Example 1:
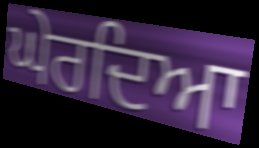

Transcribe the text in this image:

ਘੇਰਦਿਆ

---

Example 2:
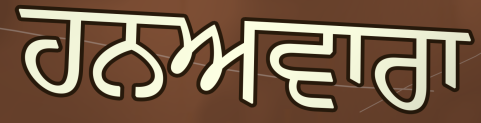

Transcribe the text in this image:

ਹਨਅਵਾਰਾ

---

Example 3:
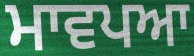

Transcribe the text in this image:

ਮਾਵਪਆ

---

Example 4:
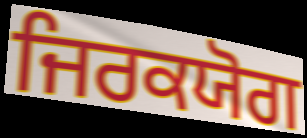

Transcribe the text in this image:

ਜਿਰਕਯੋਗ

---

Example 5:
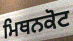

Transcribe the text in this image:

ਮਿਥਨਕੋਟ